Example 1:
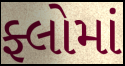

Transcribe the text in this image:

ફ્લોમાં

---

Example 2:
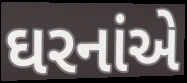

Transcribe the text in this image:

ઘરનાંએ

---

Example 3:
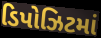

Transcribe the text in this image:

ડિપોઝિટમાં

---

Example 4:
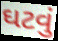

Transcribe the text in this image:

ઘટવું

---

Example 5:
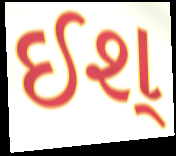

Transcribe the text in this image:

ઈશ્